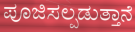
ಪೂಜಿಸಲ್ಪಡುತ್ತಾನೆ